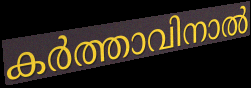
കർത്താവിനാൽ